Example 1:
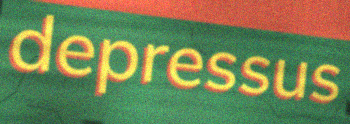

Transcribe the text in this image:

depressus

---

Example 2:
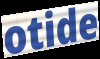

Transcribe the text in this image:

otide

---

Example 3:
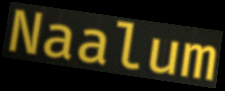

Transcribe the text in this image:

Naalum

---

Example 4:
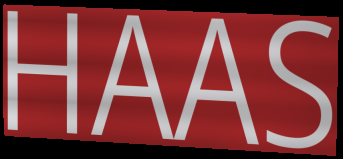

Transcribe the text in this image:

HAAS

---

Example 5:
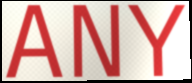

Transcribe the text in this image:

ANY